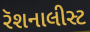
રૅશનાલીસ્ટ